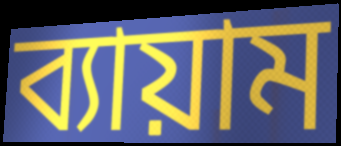
ব্যায়াম